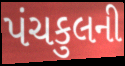
પંચકુલની